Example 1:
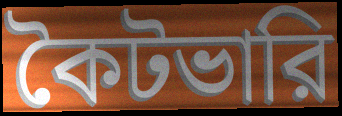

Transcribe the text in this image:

কৈটভারি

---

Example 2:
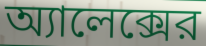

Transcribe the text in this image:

অ্যালেক্সের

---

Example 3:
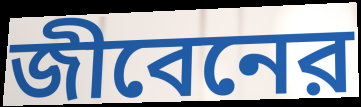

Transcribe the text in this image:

জীবেনের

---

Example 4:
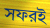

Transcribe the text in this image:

সফরই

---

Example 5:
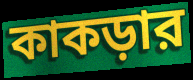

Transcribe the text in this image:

কাকড়ার